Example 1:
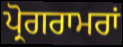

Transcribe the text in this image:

ਪ੍ਰੋਗਰਾਮਰਾਂ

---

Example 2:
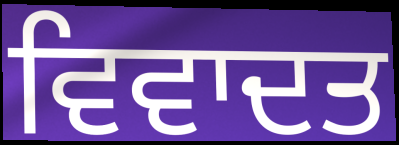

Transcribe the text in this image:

ਵਿਵਾਦਤ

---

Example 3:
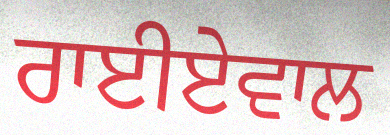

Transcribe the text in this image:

ਰਾਈਏਵਾਲ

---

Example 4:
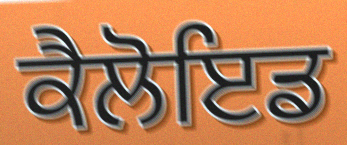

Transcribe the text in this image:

ਕੈਲੋਇਡ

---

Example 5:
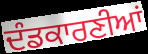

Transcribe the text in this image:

ਦੰਡਕਾਰਣੀਆਂ